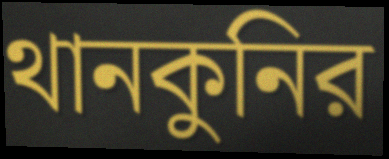
থানকুনির